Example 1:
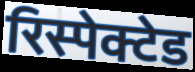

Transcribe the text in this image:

रिस्पेक्टेड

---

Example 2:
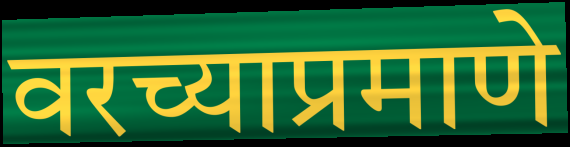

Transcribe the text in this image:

वरच्याप्रमाणे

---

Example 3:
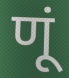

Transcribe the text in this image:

णूं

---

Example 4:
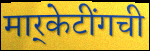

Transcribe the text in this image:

मार्केटींगची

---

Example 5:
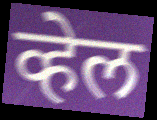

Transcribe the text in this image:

व्हेल